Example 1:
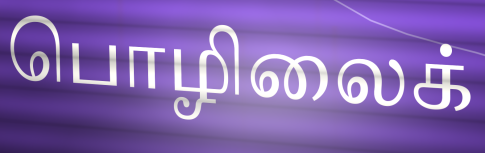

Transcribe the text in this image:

பொழிலைக்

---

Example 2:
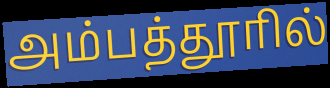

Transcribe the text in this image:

அம்பத்தூரில்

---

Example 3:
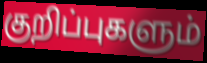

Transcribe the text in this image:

குறிப்புகளும்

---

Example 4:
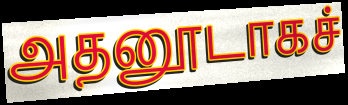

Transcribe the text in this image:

அதனூடாகச்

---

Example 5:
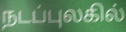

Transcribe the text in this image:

நடப்புலகில்